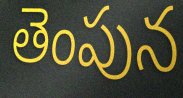
తెంపున